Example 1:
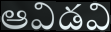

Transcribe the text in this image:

ఆవిడవి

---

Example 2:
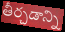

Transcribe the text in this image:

తీర్చడాన్ని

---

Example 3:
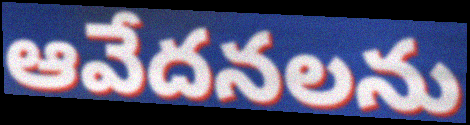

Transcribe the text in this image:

ఆవేదనలను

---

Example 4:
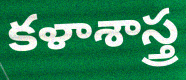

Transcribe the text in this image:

కళాశాస్త్ర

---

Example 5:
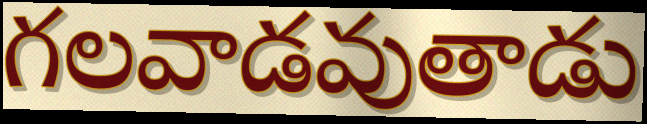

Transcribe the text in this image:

గలవాడవుతాడు